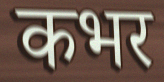
कभर